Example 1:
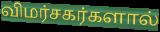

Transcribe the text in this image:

விமர்சகர்களால்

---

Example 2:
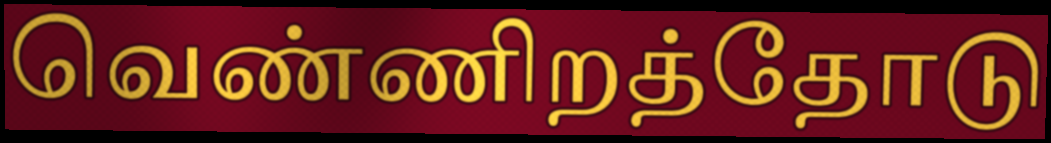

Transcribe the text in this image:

வெண்ணிறத்தோடு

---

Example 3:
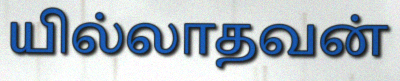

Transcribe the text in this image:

யில்லாதவன்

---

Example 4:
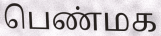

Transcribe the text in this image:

பெண்மக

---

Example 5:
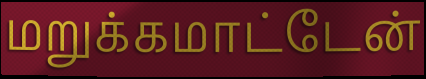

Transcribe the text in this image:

மறுக்கமாட்டேன்